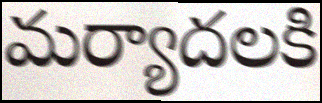
మర్యాదలకి